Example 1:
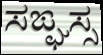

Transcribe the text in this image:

ಸಙ್ಘಸ್ಸ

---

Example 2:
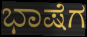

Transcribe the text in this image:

ಭಾಷೆಗ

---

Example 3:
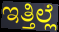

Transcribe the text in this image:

ಇತ್ತಿಲ್ಲೆ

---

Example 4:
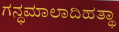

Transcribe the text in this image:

ಗನ್ಧಮಾಲಾದಿಹತ್ಥಾ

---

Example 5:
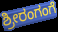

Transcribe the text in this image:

ಶ್ರೀರಂಗಂಗೆ